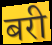
बरी